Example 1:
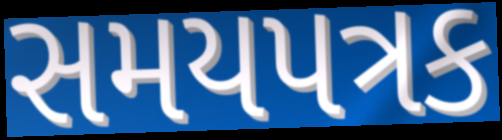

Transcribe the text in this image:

સમયપત્રક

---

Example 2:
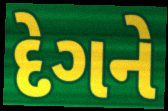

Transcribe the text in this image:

દેગને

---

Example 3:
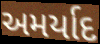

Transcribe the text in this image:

અમર્યાદ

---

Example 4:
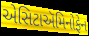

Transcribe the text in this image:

એસિટાઍમિનોફેન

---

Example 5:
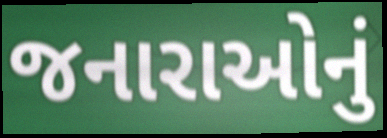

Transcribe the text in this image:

જનારાઓનું